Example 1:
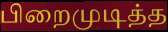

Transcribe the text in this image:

பிறைமுடித்த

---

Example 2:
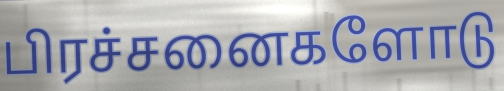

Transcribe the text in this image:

பிரச்சனைகளோடு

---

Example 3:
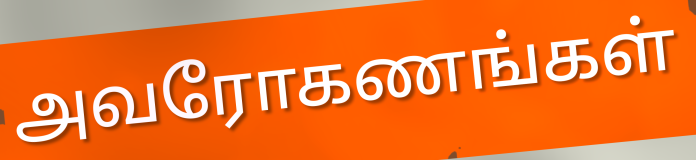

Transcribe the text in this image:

அவரோகணங்கள்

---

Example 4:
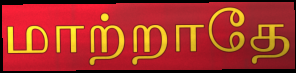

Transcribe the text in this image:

மாற்றாதே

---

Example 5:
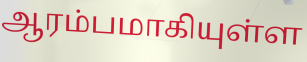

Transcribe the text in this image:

ஆரம்பமாகியுள்ள